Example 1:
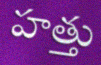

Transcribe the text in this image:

హత్తు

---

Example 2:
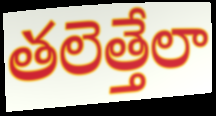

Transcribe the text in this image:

తలెత్తేలా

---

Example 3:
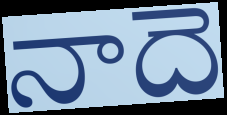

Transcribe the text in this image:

నాదె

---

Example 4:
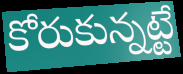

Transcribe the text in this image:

కోరుకున్నట్టే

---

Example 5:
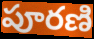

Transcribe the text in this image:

పూరణి